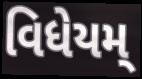
વિધેયમ્